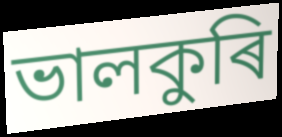
ভালকুৰি